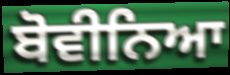
ਬੋਵੀਨਿਆ